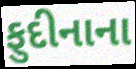
ફુદીનાના